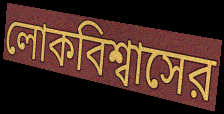
লোকবিশ্বাসের